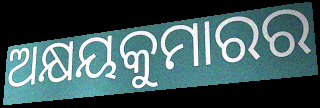
ଅକ୍ଷୟକୁମାରର